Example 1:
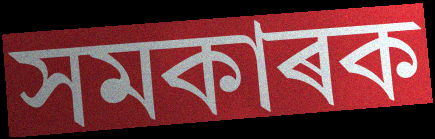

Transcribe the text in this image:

সমকাৰক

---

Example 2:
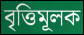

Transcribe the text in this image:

বৃত্তিমূলক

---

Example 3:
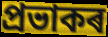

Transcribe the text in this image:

প্ৰভাকৰ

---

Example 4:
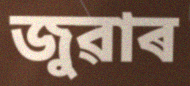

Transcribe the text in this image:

জুৱাৰ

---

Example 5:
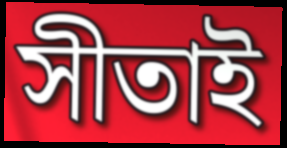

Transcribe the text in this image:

সীতাই